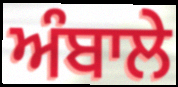
ਅੰਬਾਲੇ